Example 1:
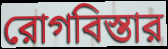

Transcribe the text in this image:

রোগবিস্তার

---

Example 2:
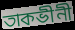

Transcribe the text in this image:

তাকভীনী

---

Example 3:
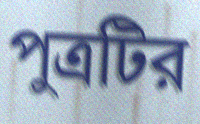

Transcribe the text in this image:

পুত্রটির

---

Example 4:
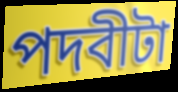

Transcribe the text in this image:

পদবীটা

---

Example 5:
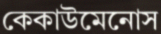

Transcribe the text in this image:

কেকাউমেনোস